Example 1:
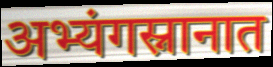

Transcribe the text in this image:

अभ्यंगस्नानात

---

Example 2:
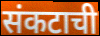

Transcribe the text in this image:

संकटाची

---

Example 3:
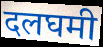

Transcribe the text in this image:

दलघमी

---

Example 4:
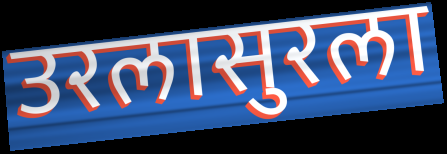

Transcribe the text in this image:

उरलासुरला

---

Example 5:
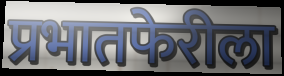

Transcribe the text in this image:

प्रभातफेरीला